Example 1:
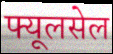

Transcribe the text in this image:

फ्यूलसेल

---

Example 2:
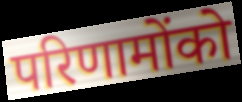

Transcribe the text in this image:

परिणामोंको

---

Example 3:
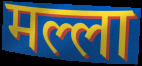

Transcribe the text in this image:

मल्‍ला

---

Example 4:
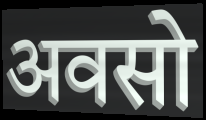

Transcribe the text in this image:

अवसो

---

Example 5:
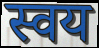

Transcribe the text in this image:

स्वय